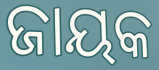
ଜାୟକ